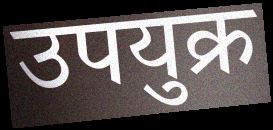
उपयुक्र